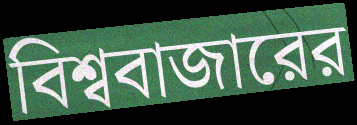
বিশ্ববাজারের